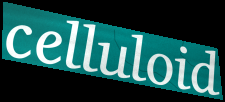
celluloid